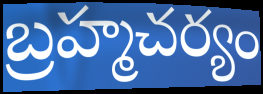
బ్రహ్మచర్యం